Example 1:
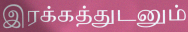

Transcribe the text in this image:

இரக்கத்துடனும்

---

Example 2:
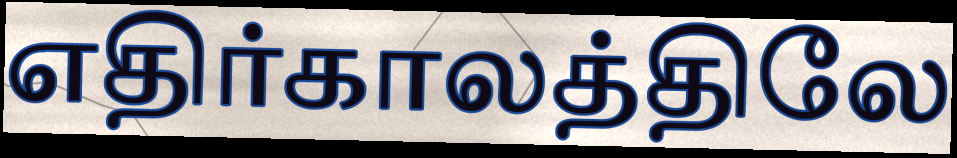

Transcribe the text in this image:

எதிர்காலத்திலே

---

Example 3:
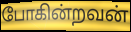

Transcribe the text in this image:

போகின்றவன்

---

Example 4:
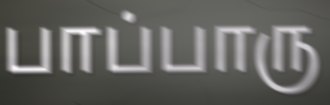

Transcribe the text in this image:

பாப்பாரு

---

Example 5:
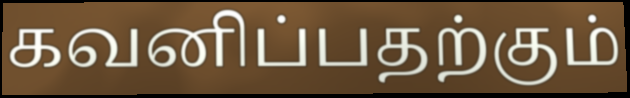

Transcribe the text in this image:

கவனிப்பதற்கும்